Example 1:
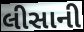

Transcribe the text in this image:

લીસાની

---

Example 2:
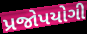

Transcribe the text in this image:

પ્રજોપયોગી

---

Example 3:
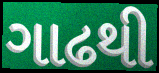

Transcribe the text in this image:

ગાઢથી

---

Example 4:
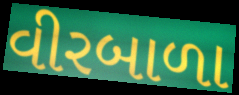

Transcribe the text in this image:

વીરબાળા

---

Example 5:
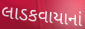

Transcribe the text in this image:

લાડકવાયાનાં